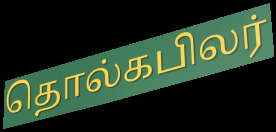
தொல்கபிலர்